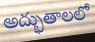
అద్భుతాలలో